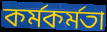
কর্মকর্মতা